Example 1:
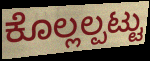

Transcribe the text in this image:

ಕೊಲ್ಲಲ್ಪಟ್ಟು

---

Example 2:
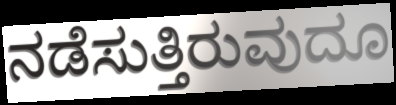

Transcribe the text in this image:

ನಡೆಸುತ್ತಿರುವುದೂ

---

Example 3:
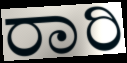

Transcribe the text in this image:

ರಾರಿ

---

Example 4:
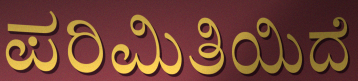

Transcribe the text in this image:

ಪರಿಮಿತಿಯಿದೆ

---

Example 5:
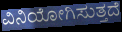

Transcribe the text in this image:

ವಿನಿಯೋಗಿಸುತ್ತದೆ